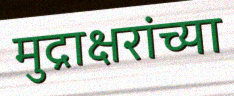
मुद्राक्षरांच्या